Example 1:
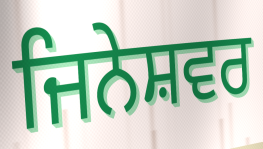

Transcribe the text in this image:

ਜਿਨੇਸ਼ਵਰ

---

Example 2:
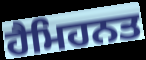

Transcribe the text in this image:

ਹੈਮਿਹਨਤ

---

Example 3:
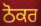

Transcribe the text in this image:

ਠੋਕਰ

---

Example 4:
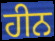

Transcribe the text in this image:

ਹੀਨ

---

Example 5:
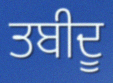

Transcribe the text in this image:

ਤਬੀਦੂ